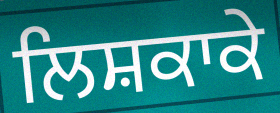
ਲਿਸ਼ਕਾਕੇ